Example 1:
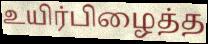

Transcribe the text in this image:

உயிர்பிழைத்த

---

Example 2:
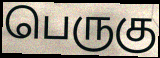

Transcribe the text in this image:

பெருகு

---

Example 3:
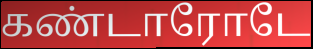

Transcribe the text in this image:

கண்டாரோடே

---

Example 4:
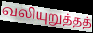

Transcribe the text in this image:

வலியுறுத்தத்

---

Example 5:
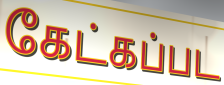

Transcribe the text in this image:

கேட்கப்பட